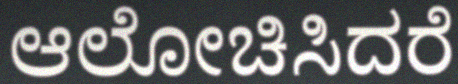
ಆಲೋಚಿಸಿದರೆ